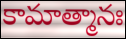
కామాత్మానః